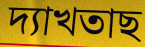
দ্যাখতাছ